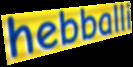
hebballi